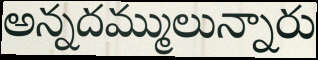
అన్నదమ్ములున్నారు